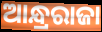
ଆନ୍ଧ୍ରରାଜା